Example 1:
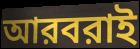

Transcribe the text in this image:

আরবরাই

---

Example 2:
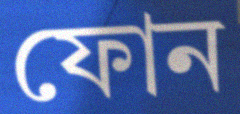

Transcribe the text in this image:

ফোন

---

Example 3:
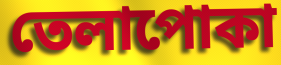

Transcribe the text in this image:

তেলাপোকা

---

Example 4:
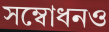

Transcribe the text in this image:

সম্বোধনও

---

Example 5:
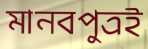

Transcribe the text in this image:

মানবপুত্রই